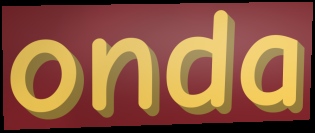
onda